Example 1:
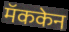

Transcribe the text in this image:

मॅककेन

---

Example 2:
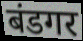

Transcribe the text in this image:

बंडगर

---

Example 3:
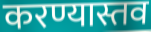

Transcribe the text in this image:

करण्यास्तव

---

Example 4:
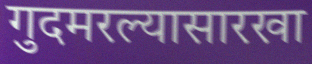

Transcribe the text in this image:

गुदमरल्यासारखा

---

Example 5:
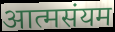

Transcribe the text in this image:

आत्मसंयम